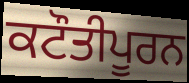
ਕਟੌਤੀਪੂਰਨ